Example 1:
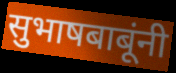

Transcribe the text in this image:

सुभाषबाबूंनी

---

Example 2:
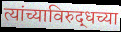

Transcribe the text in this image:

त्यांच्याविरुद्धच्या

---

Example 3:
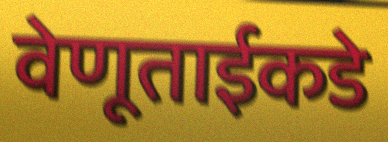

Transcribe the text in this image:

वेणूताईकडे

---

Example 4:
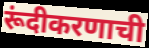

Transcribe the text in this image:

रूंदीकरणाची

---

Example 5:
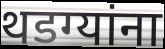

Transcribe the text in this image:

थडग्यांना